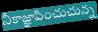
నీకాజ్ఞాపించుచున్న